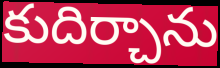
కుదిర్చాను